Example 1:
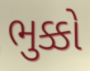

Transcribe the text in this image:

ભુક્કો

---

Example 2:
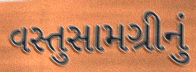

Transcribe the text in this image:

વસ્તુસામગ્રીનું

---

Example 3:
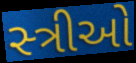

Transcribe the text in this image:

સ્‍ત્રીઓ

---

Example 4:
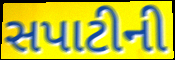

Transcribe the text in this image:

સપાટીની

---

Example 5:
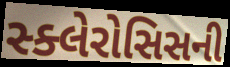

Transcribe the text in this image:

સ્ક્લેરોસિસની